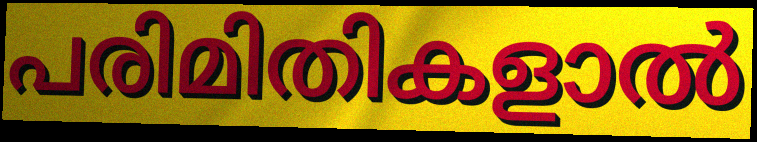
പരിമിതികളാൽ